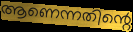
ആണെന്നതിന്റെ